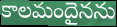
కాలమందైనను